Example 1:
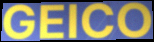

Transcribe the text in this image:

GEICO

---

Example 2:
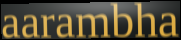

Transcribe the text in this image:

aarambha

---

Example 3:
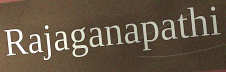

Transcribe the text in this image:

Rajaganapathi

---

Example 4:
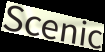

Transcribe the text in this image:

Scenic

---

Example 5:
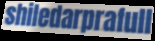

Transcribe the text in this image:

shiledarprafull